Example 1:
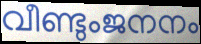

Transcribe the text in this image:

വീണ്ടുംജനനം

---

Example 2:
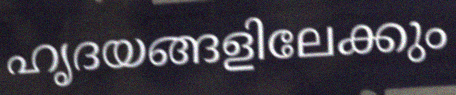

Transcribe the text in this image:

ഹൃദയങ്ങളിലേക്കും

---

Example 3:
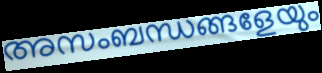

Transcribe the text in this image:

അസംബന്ധങ്ങളേയും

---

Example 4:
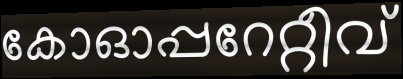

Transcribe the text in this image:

കോഓപ്പറേറ്റീവ്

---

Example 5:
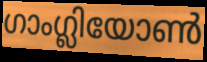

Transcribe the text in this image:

ഗാംഗ്ലിയോൺ